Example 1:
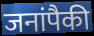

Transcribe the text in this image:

जनांपैकी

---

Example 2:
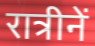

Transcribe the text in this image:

रात्रीनें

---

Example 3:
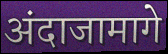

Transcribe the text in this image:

अंदाजामागे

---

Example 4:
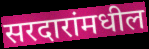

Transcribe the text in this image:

सरदारांमधील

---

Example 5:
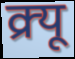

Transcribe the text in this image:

क्र्यू